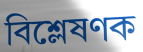
বিশ্লেষণক